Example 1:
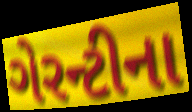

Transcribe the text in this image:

ગેરન્ટીના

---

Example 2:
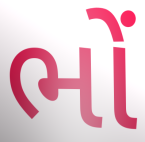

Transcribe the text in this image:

ભોં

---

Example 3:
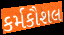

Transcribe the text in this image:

કર્મકૌશલ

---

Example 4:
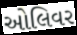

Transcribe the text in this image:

ઓલિવર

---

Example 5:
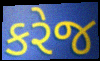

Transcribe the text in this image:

કરેજ